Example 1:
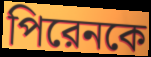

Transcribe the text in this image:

পিরেনকে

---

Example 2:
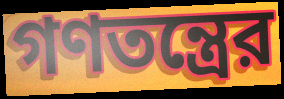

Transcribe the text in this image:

গণতন্ত্রের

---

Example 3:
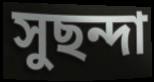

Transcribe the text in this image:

সুছন্দা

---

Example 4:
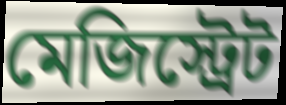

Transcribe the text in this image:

মেজিস্ট্রেট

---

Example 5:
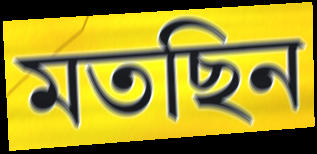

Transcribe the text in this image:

মতছিন